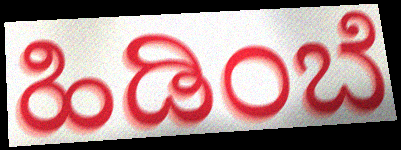
ಹಿಡಿಂಬೆ